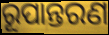
ରୂପାନ୍ତରଣ